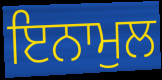
ਇਨਾਮੁਲ